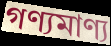
গণ্যমাণ্য